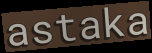
astaka